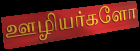
ஊழியர்களோ